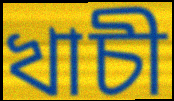
খাচী